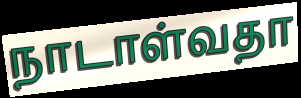
நாடாள்வதா